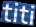
titi